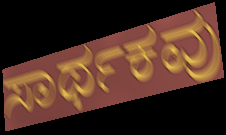
ಸಾರ್ಥಕವು